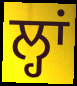
ਲ੍ਹਾਂ